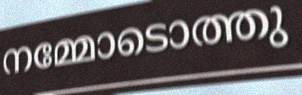
നമ്മോടൊത്തു